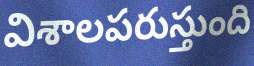
విశాలపరుస్తుంది